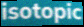
isotopic